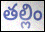
తల్లిం